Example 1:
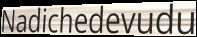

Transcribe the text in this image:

Nadichedevudu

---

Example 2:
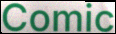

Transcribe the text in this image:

Comic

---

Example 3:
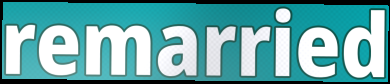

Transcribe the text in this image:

remarried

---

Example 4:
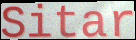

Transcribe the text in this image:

Sitar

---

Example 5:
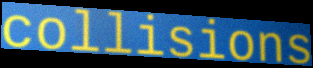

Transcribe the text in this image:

collisions